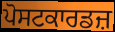
ਪੋਸਟਕਾਰਡਜ਼